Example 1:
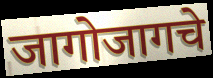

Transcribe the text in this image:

जागोजागचे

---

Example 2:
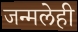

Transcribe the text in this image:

जन्मलेही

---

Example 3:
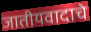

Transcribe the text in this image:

जातीयवादाचे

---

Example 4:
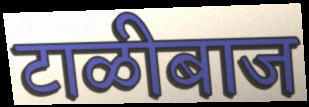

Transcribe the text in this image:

टाळीबाज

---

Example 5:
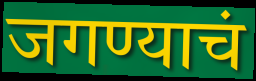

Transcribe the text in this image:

जगण्याचं